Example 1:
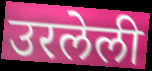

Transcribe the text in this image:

उरलेली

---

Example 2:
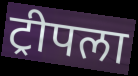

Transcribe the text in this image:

ट्रीपला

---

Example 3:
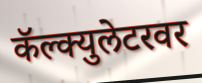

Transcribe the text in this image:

कॅल्क्युलेटरवर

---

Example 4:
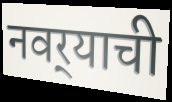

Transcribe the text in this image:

नवर्याची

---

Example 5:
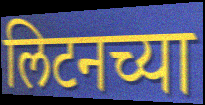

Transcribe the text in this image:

लिटनच्या